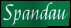
Spandau